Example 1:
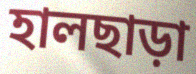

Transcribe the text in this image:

হালছাড়া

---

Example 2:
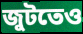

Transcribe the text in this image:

জুটতেও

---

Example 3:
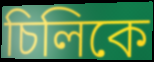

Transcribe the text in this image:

চিলিকে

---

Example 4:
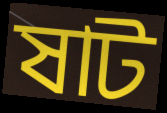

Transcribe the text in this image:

ষাট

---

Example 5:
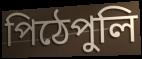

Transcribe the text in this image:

পিঠেপুলি